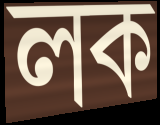
লক